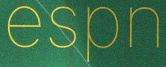
espn